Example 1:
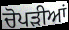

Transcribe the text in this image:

ਚੋਪੜੀਆਂ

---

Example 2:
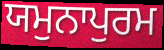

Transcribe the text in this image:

ਯਮੁਨਾਪੁਰਮ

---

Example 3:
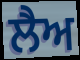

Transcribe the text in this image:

ਲੈਅ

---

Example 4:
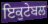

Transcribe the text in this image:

ਇਕੁਟੇਬਲ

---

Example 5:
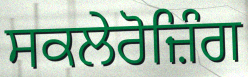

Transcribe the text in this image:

ਸਕਲੇਰੋਜ਼ਿੰਗ